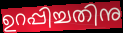
ഉറപ്പിച്ചതിനു